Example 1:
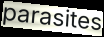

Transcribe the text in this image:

parasites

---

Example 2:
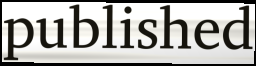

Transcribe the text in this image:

published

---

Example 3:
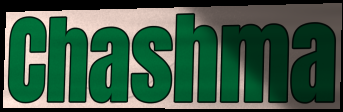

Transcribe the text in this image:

Chashma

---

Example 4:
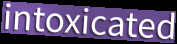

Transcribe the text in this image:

intoxicated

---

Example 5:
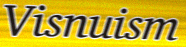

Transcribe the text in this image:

Visnuism